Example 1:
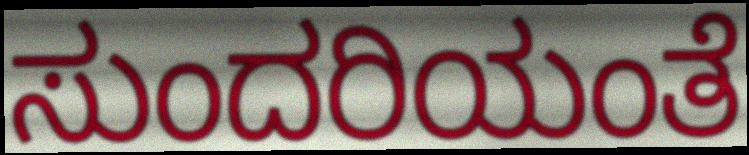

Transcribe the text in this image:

ಸುಂದರಿಯಂತೆ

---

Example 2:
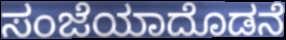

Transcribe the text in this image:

ಸಂಜೆಯಾದೊಡನೆ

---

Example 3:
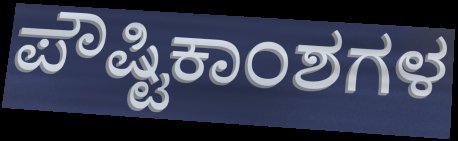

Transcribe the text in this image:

ಪೌಷ್ಟಿಕಾಂಶಗಳ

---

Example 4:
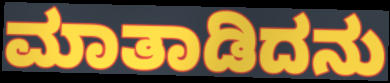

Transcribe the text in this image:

ಮಾತಾಡಿದನು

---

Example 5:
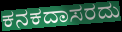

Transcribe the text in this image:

ಕನಕದಾಸರದು